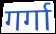
गर्गा